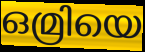
ഒമ്രിയെ